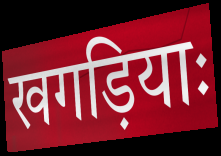
खगड़ियाः